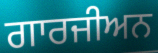
ਗਾਰਜੀਅਨ